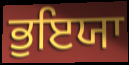
ਭੁਇਯਾ